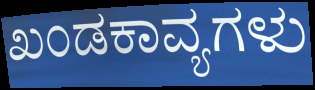
ಖಂಡಕಾವ್ಯಗಳು